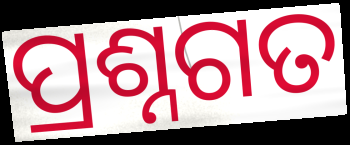
ପ୍ରଶ୍ନଗତ